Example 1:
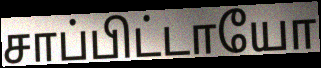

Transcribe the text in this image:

சாப்பிட்டாயோ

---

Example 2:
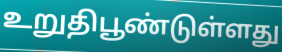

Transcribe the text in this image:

உறுதிபூண்டுள்ளது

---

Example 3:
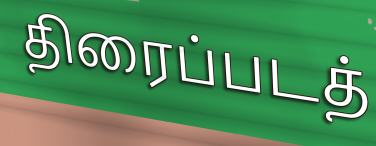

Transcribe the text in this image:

திரைப்படத்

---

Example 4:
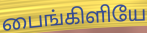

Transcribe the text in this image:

பைங்கிளியே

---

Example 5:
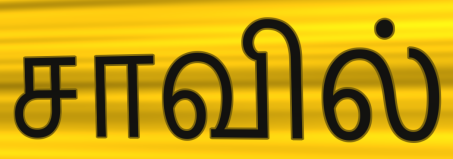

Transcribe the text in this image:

சாவில்